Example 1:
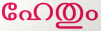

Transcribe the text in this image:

ഹേതും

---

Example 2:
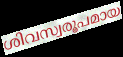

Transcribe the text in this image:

ശിവസ്വരൂപമായ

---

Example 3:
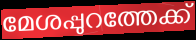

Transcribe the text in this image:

മേശപ്പുറത്തേക്ക്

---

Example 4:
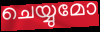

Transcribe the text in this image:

ചെയ്യുമോ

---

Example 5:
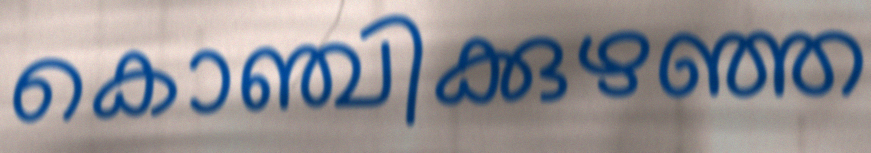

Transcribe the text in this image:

കൊഞ്ചിക്കുഴഞ്ഞ